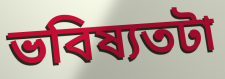
ভবিষ্যতটা